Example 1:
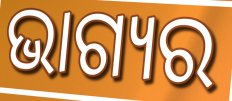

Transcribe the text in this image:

ଭାଗ୍ୟର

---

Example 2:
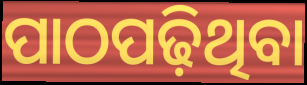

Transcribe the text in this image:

ପାଠପଢ଼ିଥିବା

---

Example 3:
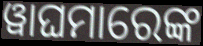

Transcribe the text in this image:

ୱାଘମାରେଙ୍କ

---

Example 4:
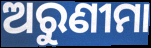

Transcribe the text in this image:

ଅରୁଣୀମା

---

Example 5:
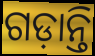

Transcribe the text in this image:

ଗଡ଼ାନ୍ତି